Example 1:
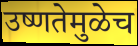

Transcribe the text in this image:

उष्णतेमुळेच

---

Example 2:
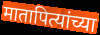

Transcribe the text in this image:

मातापित्यांच्या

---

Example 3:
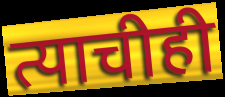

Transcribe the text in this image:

त्याचीही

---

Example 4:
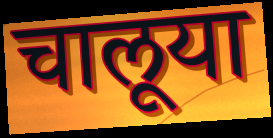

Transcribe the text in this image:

चालूया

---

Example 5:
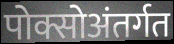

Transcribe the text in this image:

पोक्सोअंतर्गत